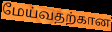
மேய்வதற்கான